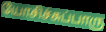
யோசிச்சுப்பாரு